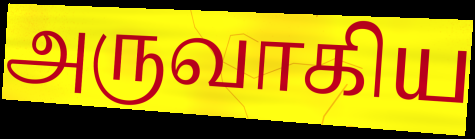
அருவாகிய